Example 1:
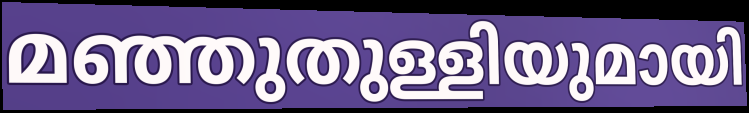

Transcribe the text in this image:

മഞ്ഞുതുള്ളിയുമായി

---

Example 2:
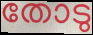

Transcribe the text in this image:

തോടു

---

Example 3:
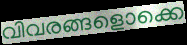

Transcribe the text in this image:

വിവരങ്ങളൊക്കെ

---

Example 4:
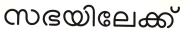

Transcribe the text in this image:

സഭയിലേക്ക്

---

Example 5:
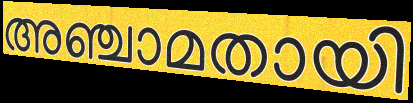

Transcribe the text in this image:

അഞ്ചാമതായി